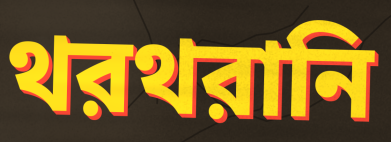
থরথরানি